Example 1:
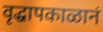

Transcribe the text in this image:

वृद्धापकाळानं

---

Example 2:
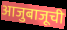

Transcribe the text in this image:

आजुबाजूची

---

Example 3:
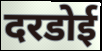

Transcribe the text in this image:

दरडोई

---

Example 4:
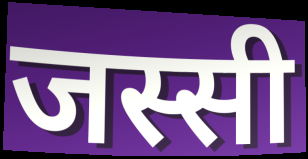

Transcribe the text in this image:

जस्सी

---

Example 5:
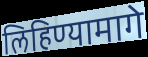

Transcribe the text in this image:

लिहिण्यामागे